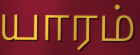
யாரம்